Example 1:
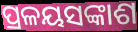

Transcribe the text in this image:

ପ୍ରଳୟସଙ୍କାଶ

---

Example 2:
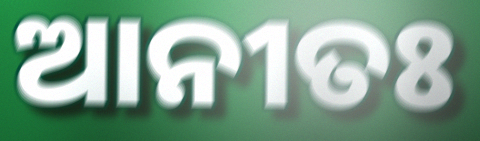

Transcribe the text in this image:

ଆନୀତଃ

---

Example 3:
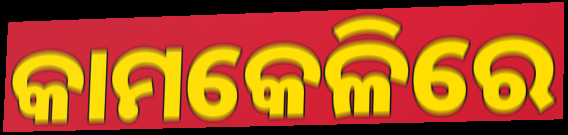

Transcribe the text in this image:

କାମକେଳିରେ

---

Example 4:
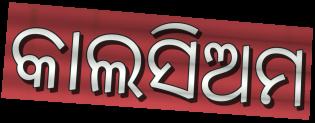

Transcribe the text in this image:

କାଲସିଅମ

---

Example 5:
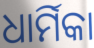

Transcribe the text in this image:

ଧାର୍ମିକା